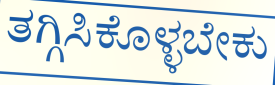
ತಗ್ಗಿಸಿಕೊಳ್ಳಬೇಕು